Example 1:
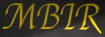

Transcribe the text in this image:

MBIR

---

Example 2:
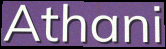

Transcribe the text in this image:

Athani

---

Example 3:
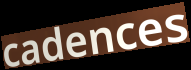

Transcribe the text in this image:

cadences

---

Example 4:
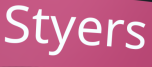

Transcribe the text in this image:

Styers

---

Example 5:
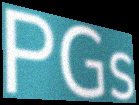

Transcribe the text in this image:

PGs